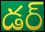
డర్